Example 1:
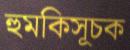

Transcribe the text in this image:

হুমকিসূচক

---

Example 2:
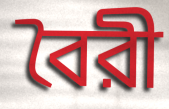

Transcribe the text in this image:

বৈরী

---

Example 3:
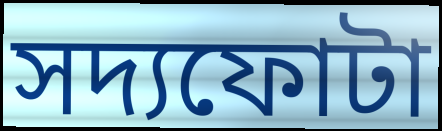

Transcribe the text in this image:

সদ্যফোটা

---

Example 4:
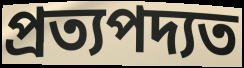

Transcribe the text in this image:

প্রত্যপদ্যত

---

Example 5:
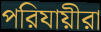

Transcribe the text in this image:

পরিযায়ীরা